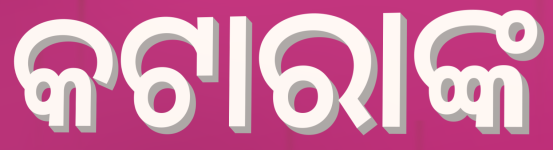
କଟାରାଙ୍କ